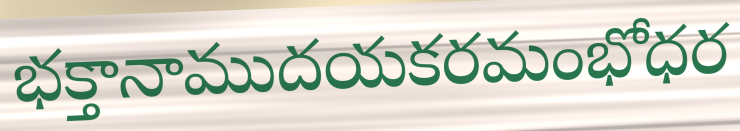
భక్తానాముదయకరమంభోధర